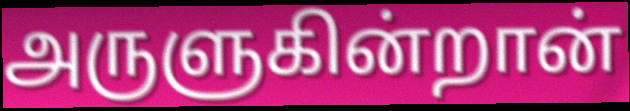
அருளுகின்றான்